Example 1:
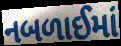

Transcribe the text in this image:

નબળાઈમાં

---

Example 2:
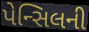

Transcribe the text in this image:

પેન્સિલની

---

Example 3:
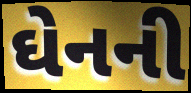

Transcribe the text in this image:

ઘેનની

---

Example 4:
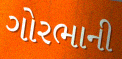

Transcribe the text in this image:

ગોરભાની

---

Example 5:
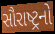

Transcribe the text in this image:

સૌરાષ્ટ્રનો